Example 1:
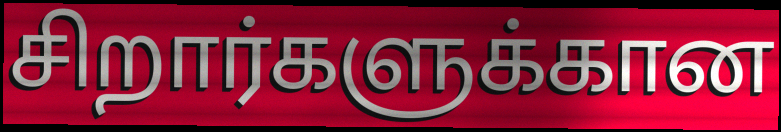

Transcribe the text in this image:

சிறார்களுக்கான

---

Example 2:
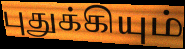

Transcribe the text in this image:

புதுக்கியும்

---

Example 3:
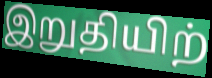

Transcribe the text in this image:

இறுதியிற்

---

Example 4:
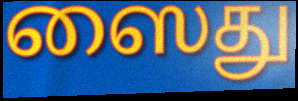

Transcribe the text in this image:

ஸைது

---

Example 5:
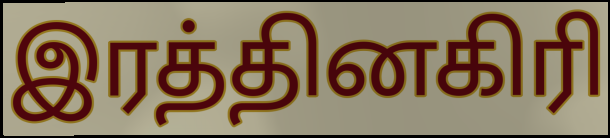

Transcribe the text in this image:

இரத்தினகிரி